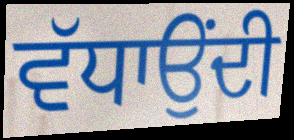
ਵੱਧਾਉਂਦੀ